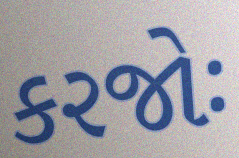
કરજોઃ